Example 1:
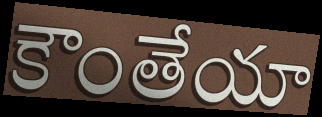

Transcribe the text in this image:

కౌంతేయా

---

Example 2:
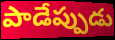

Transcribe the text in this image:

పాడేప్పుడు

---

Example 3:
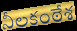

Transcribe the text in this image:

నీలకంఠేశ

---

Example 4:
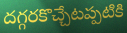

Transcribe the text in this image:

దగ్గరకొచ్చేటప్పటికి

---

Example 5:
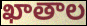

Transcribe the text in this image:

ఖాతాల